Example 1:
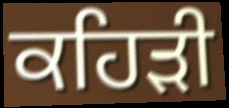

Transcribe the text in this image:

ਕਹਿੜੀ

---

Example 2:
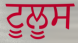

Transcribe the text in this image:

ਟੂਲੂਸ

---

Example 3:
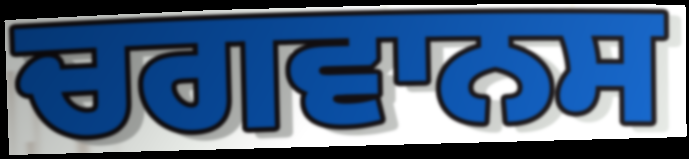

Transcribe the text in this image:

ਚਗਵਾਨਸ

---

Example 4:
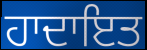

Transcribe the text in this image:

ਹਾਦਾਇਤ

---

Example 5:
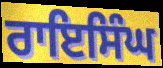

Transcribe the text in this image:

ਰਾਇਸਿੰਘ